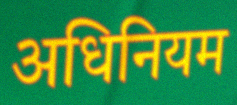
अधिनियम